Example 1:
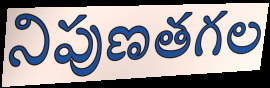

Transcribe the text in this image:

నిపుణతగల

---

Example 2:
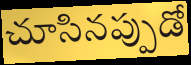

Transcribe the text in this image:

చూసినప్పుడో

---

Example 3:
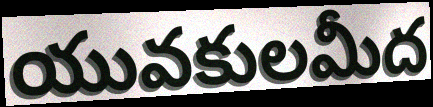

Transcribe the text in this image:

యువకులమీద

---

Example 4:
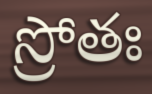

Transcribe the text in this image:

స్రోతః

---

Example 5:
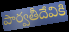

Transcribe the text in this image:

పార్వతీదేవికి